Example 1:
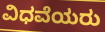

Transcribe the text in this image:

ವಿಧವೆಯರು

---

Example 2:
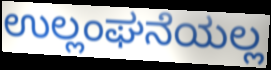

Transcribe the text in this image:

ಉಲ್ಲಂಘನೆಯಲ್ಲ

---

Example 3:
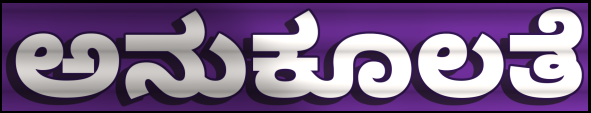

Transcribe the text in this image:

ಅನುಕೂಲತೆ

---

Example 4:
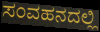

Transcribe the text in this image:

ಸಂವಹನದಲ್ಲಿ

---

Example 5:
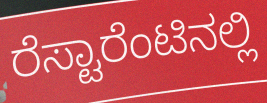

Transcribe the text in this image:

ರೆಸ್ಟಾರೆಂಟಿನಲ್ಲಿ